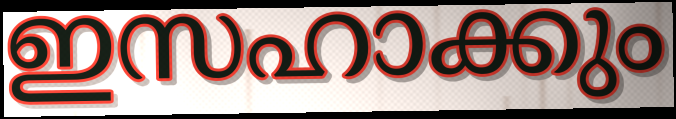
ഇസഹാക്കും